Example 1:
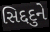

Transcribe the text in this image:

સિદ્દદુને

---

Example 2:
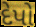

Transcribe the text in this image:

દેપો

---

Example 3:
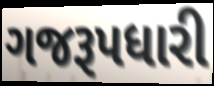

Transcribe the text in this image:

ગજરૂપધારી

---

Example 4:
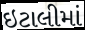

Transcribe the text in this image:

ઇટાલીમાં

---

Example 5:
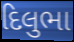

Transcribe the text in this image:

દિલુભા